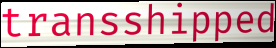
transshipped